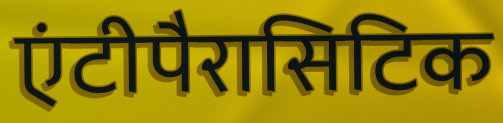
एंटीपैरासिटिक